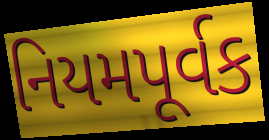
નિયમપૂર્વક